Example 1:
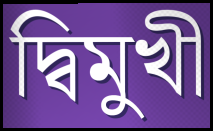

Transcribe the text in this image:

দ্বিমুখী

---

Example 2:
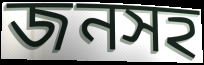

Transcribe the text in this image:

জনসহ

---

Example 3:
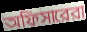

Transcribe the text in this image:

অফিসারেরা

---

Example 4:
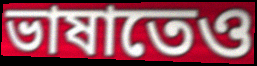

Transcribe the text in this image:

ভাষাতেও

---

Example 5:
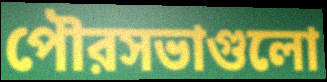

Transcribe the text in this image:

পৌরসভাগুলো